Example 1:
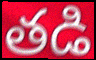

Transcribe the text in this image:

తడి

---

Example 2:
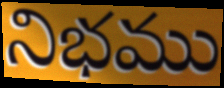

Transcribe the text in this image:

నిభము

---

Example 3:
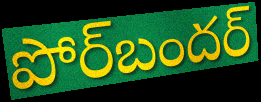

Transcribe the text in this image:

పోర్‌బందర్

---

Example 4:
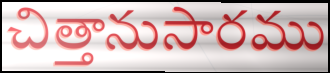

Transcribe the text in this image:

చిత్తానుసారము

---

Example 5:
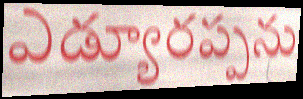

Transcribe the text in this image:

ఎడ్యూరప్పను